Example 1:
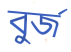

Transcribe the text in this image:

বুর্জ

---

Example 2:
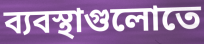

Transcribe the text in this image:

ব্যবস্থাগুলোতে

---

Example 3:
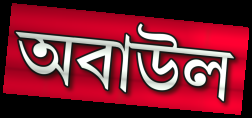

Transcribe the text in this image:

অবাউল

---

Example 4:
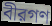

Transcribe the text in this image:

বীরগণ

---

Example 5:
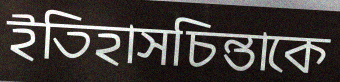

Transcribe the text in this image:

ইতিহাসচিন্তাকে